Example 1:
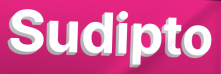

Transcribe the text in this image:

Sudipto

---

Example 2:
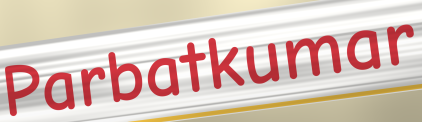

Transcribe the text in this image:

Parbatkumar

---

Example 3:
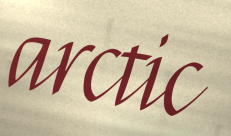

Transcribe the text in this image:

arctic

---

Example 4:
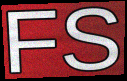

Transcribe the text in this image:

FS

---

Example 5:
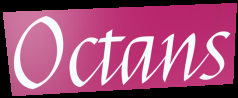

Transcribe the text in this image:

Octans